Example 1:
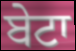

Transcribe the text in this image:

ਬੇਟਾ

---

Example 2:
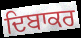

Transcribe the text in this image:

ਦਿਬਾਕਰ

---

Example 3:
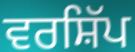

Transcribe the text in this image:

ਵਰਸ਼ਿੱਪ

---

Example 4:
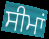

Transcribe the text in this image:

ਸੀਮਾਂ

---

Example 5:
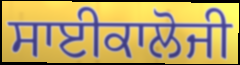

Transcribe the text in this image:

ਸਾਈਕਾਲੋਜੀ